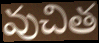
వుచిత